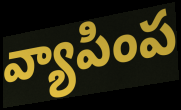
వ్యాపింప